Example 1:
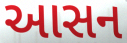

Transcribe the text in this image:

આસન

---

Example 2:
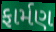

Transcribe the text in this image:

ફાર્મણ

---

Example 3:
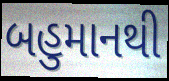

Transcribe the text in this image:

બહુમાનથી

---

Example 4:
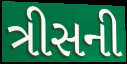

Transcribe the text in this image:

ત્રીસની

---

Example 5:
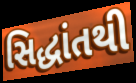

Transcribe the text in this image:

સિદ્ધાંતથી